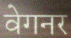
वेगनर